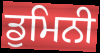
ਡੁਮਿਨੀ